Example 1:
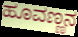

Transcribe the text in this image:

ಹೂವಣ್ಣನ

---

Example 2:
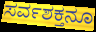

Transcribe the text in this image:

ಸರ್ವಶಕ್ತನೂ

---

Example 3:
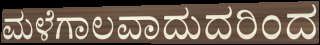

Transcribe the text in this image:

ಮಳೆಗಾಲವಾದುದರಿಂದ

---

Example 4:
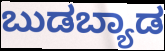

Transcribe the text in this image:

ಬುಡಬ್ಯಾಡ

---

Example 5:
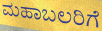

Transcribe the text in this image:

ಮಹಾಬಲರಿಗೆ